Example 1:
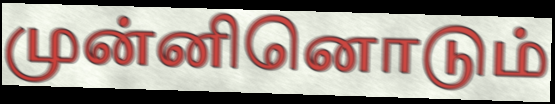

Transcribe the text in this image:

முன்னினொடும்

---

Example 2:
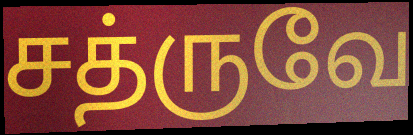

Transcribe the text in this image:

சத்ருவே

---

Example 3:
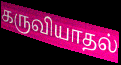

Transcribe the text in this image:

கருவியாதல்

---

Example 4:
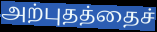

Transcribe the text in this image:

அற்புதத்தைச்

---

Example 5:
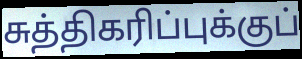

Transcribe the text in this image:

சுத்திகரிப்புக்குப்